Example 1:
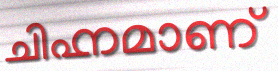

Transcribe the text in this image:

ചിഹ്നമാണ്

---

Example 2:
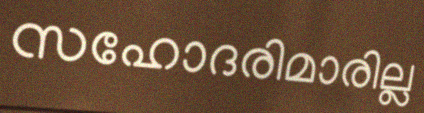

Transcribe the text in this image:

സഹോദരിമാരില്ല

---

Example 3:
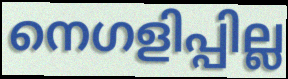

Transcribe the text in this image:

നെഗളിപ്പില്ല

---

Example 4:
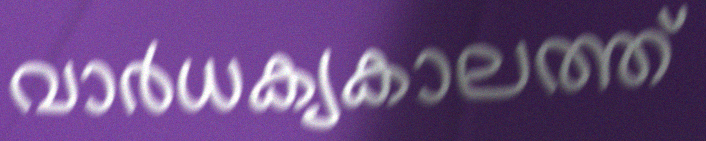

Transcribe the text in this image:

വാർധക്യകാലത്ത്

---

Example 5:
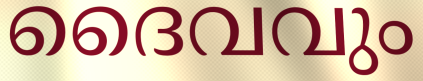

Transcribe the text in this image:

ദൈവവും